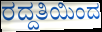
ರದ್ದತಿಯಿಂದ